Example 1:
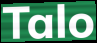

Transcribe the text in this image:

Talo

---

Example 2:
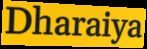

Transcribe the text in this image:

Dharaiya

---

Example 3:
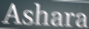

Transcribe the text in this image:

Ashara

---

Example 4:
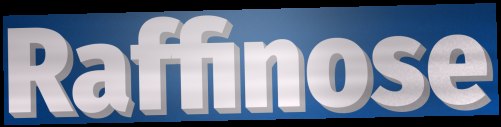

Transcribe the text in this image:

Raffinose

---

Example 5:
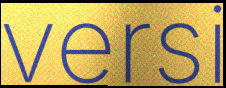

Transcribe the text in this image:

versi